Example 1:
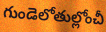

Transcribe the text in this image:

గుండెలోతుల్లోంచీ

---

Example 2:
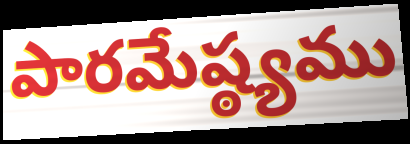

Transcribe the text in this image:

పారమేష్ఠ్యము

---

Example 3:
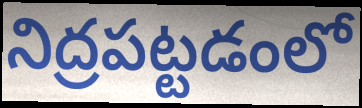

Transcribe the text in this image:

నిద్రపట్టడంలో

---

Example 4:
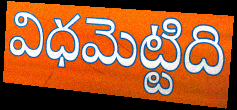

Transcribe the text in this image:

విధమెట్టిది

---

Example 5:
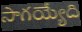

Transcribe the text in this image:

సాగయ్యేది